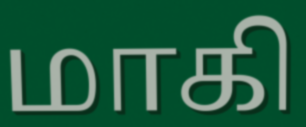
மாகி